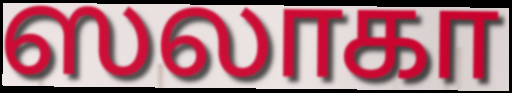
ஸலாகா